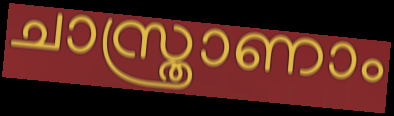
ചാസ്ത്രാണാം